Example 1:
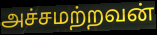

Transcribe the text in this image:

அச்சமற்றவன்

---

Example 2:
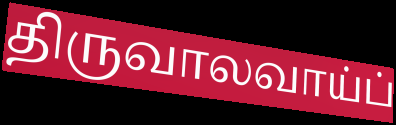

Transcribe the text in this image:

திருவாலவாய்ப்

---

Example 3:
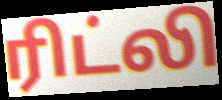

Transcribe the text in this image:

ரிட்லி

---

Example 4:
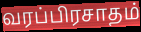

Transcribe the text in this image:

வரப்பிரசாதம்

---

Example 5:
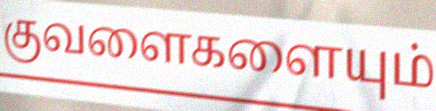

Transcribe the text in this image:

குவளைகளையும்